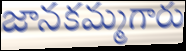
జానకమ్మగారు